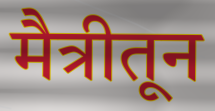
मैत्रीतून